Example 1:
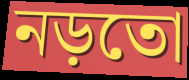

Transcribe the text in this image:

নড়তো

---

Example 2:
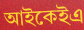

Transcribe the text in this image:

আইকেইএ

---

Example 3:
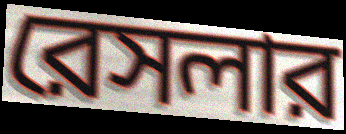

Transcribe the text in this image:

রেসলার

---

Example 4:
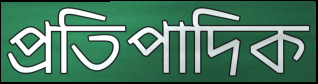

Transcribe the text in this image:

প্রতিপাদিক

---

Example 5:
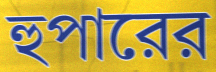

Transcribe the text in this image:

হুপারের